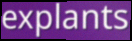
explants